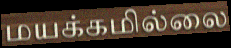
மயக்கமில்லை